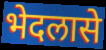
भेदलासे